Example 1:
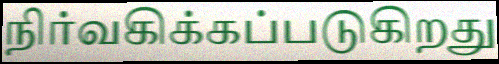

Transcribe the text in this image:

நிர்வகிக்கப்படுகிறது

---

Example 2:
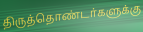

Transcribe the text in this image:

திருத்தொண்டர்களுக்கு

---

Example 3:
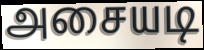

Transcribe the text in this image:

அசையடி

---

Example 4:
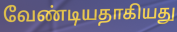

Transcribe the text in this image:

வேண்டியதாகியது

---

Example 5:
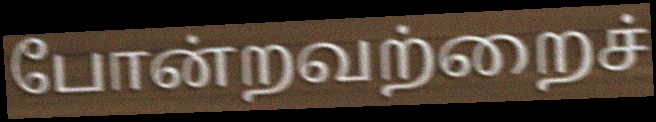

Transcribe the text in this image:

போன்றவற்றைச்